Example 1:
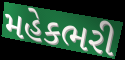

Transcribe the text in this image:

મહેકભરી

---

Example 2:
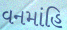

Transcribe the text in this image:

વનમાંહિ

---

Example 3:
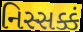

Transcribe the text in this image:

નિસ્સક્કં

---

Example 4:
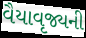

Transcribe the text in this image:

વૈયાવૃજ્યની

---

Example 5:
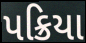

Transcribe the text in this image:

પક્રિયા